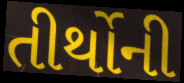
તીર્થોની